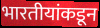
भारतीयांकडून